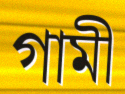
গামী